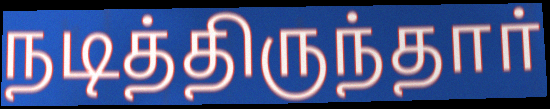
நடித்திருந்தார்